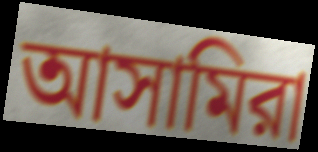
আসামিরা